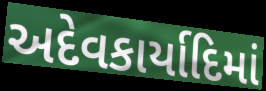
અદેવકાર્યાદિમાં